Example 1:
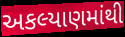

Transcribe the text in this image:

અકલ્યાણમાંથી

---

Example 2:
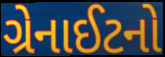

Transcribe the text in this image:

ગ્રેનાઈટનો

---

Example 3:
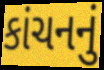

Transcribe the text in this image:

કાંચનનું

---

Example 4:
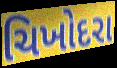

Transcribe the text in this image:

ચિખોદરા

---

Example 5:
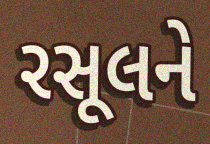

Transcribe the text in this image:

રસૂલને